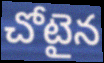
చోటైన